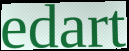
edart